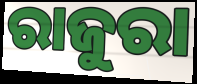
ରାଜୁରା